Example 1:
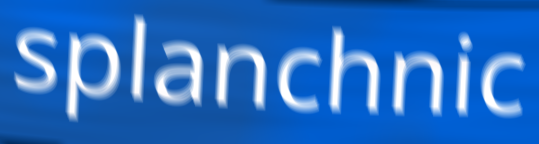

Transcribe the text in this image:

splanchnic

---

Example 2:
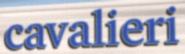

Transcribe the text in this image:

cavalieri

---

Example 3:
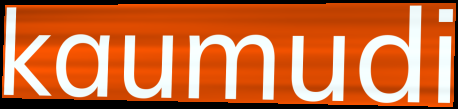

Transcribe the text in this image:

kaumudi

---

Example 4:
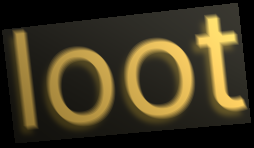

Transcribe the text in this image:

loot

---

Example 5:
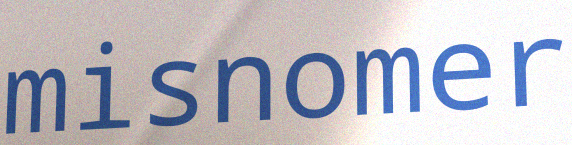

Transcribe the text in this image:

misnomer